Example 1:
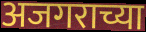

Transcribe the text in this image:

अजगराच्या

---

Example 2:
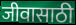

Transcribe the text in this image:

जीवासाठी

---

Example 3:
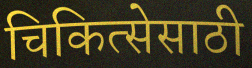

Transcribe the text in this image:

चिकित्सेसाठी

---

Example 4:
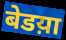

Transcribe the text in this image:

बेडय़ा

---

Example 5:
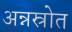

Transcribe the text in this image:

अन्नस्रोत